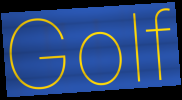
Golf